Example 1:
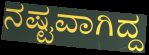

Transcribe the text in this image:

ನಷ್ಟವಾಗಿದ್ದ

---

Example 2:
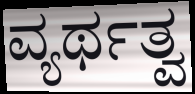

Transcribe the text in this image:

ವ್ಯರ್ಥತ್ವ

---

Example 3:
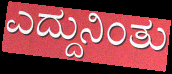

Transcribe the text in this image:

ಎದ್ದುನಿಂತು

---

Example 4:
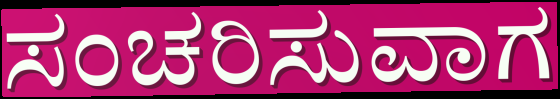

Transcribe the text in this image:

ಸಂಚರಿಸುವಾಗ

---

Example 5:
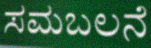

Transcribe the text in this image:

ಸಮಬಲನೆ